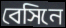
বেসিনে